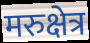
मरुक्षेत्र